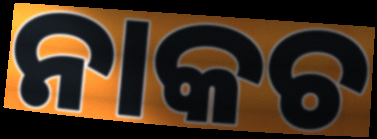
ନାକଚ